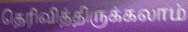
தெரிவித்திருக்கலாம்